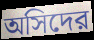
অসিদের